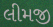
લીમજી